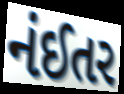
નંઈતર